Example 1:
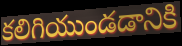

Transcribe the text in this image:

కలిగియుండడానికి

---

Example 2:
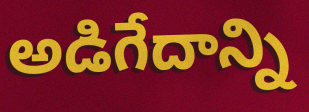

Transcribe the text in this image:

అడిగేదాన్ని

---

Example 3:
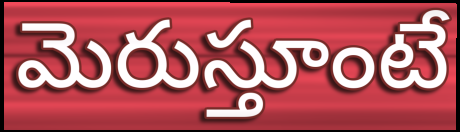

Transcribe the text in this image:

మెరుస్తూంటే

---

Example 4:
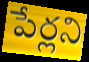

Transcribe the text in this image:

పేర్లని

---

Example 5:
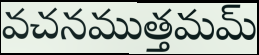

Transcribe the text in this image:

వచనముత్తమమ్